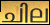
ചില